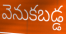
వెనుకబడ్డ